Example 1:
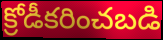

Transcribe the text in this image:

క్రోడీకరించబడి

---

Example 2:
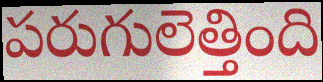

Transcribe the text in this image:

పరుగులెత్తింది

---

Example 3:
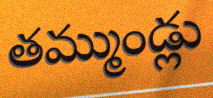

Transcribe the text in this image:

తమ్ముండ్లు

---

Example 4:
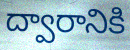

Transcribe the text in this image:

ద్వారానికి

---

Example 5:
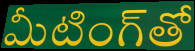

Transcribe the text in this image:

మీటింగ్‌తో